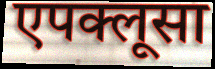
एपक्लूसा